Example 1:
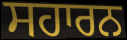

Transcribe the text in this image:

ਸਹਾਰਨ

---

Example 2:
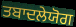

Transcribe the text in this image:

ਤਬਾਦਲੇਯੋਗ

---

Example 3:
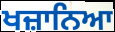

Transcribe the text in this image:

ਖਜ਼ਾਨਿਆ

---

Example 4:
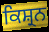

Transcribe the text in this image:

ਕਿਸ਼੍ਰਨ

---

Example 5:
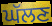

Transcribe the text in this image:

ਘੱਲਣ